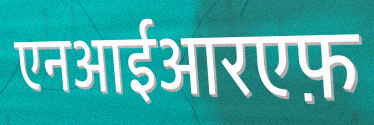
एनआईआरएफ़